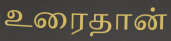
உரைதான்